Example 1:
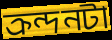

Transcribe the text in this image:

ক্রন্দনটা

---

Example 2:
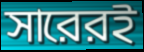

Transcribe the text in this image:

সারেরই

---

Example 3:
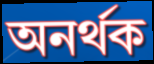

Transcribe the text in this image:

অনর্থক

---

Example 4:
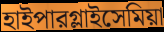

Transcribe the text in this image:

হাইপারগ্লাইসেমিয়া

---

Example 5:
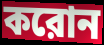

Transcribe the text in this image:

করোন